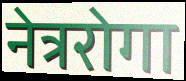
नेत्ररोगा